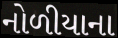
નોળીયાના